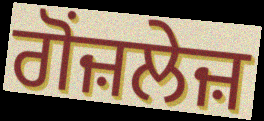
ਗੋਂਜ਼ਲੇਜ਼